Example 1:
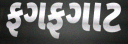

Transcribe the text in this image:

ફગફગાટ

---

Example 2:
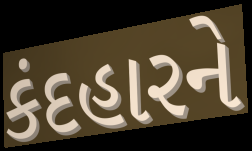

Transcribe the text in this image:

કંદહારને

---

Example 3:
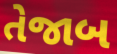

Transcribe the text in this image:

તેજાબ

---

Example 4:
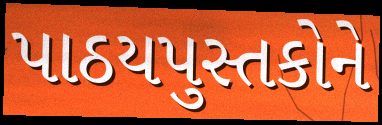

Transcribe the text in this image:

પાઠયપુસ્તકોને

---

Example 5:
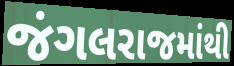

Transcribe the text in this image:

જંગલરાજમાંથી